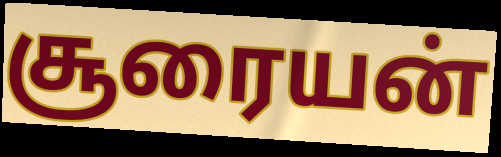
சூரையன்